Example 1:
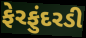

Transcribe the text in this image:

ફેરફુંદરડી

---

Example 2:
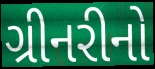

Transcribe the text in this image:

ગ્રીનરીનો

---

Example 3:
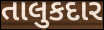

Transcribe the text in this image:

તાલુકદાર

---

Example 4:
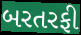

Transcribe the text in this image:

બરતરફી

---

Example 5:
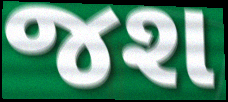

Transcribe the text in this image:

જશ